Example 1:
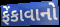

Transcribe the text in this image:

ફેંકાવાનો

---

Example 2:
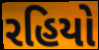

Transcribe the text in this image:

રહિયો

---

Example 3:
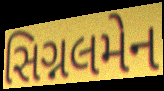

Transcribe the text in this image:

સિગ્નલમેન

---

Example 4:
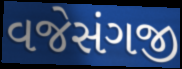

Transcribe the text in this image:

વજેસંગજી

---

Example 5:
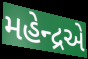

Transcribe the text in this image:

મહેન્દ્રએ